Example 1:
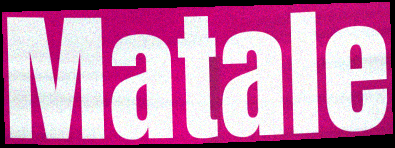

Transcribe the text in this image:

Matale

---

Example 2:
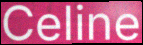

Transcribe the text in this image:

Celine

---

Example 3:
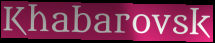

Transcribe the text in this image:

Khabarovsk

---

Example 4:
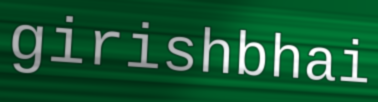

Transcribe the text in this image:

girishbhai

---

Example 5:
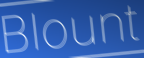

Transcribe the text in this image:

Blount